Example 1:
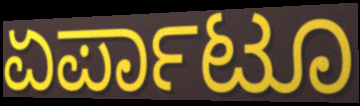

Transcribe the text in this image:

ಏರ್ಪಾಟೂ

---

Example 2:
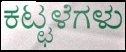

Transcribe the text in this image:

ಕಟ್ಟಳೆಗಳು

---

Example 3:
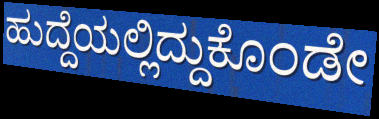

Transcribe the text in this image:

ಹುದ್ದೆಯಲ್ಲಿದ್ದುಕೊಂಡೇ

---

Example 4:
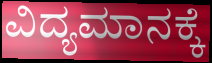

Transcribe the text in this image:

ವಿದ್ಯಮಾನಕ್ಕೆ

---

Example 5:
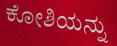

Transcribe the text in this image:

ಕೋಶಿಯನ್ನು